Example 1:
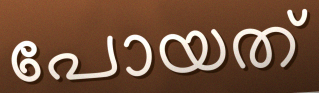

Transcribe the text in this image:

പോയത്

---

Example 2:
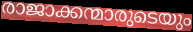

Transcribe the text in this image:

രാജാക്കന്മാരുടെയും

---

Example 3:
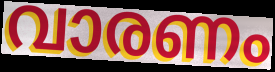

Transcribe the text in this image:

വാരണം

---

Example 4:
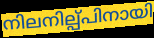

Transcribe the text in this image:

നിലനില്പ്പിനായി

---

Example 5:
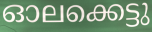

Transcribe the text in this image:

ഓലക്കെട്ടു